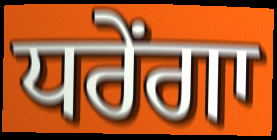
ਧਰੇਂਗਾ